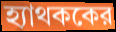
হ্যাথককের